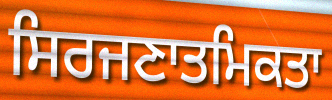
ਸਿਰਜਣਾਤਮਿਕਤਾ